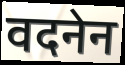
वदनेन